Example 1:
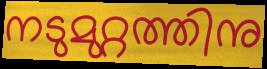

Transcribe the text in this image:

നടുമുറ്റത്തിനു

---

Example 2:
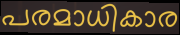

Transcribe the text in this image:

പരമാധികാര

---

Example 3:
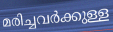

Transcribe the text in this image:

മരിച്ചവർക്കുള്ള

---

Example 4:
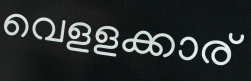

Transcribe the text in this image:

വെളളക്കാര്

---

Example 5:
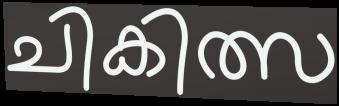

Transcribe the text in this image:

ചികിത്സ